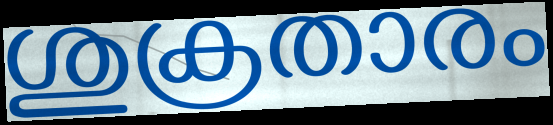
ശുക്രതാരം